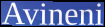
Avineni